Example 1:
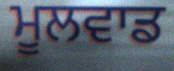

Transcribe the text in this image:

ਮੂਲਵਾਡ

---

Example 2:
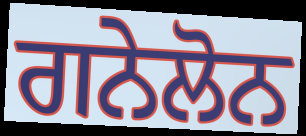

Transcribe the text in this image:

ਗਨੇਲੋਨ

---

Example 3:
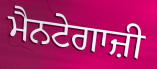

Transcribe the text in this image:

ਮੈਨਟੇਗਾਜ਼ੀ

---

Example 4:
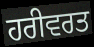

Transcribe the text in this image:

ਹਰੀਵਰਤ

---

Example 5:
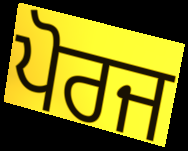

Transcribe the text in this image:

ਪੋਰਜ